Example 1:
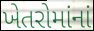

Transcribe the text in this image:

ખેતરોમાંનાં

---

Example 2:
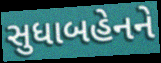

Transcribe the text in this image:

સુધાબહેનને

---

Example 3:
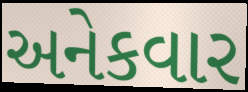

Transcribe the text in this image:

અનેકવાર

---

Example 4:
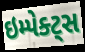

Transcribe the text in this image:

ઇમ્પેક્ટ્સ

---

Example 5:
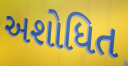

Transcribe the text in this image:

અશોધિત